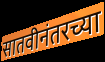
सातवीनंतरच्या